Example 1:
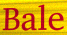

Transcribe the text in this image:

Bale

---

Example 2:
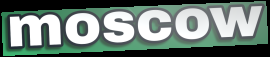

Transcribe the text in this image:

moscow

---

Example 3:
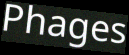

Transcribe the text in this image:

Phages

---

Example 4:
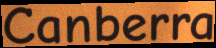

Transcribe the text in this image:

Canberra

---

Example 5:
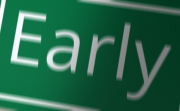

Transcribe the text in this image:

Early